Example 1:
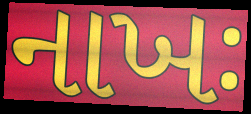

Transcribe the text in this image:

નાખઃ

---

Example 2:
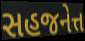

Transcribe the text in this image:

સહજનેત્ત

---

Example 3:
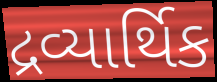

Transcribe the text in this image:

દ્રવ્યાર્થિક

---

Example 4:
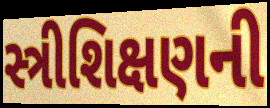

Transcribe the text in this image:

સ્ત્રીશિક્ષણની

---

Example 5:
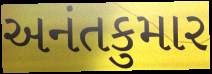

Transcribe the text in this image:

અનંતકુમાર